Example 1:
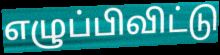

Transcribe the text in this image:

எழுப்பிவிட்டு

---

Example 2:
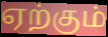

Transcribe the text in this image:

ஏற்கும்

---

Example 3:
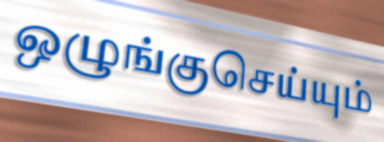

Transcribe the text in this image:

ஒழுங்குசெய்யும்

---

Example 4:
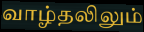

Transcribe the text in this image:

வாழ்தலிலும்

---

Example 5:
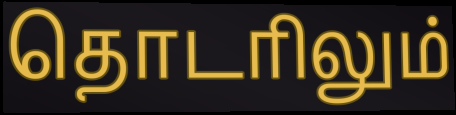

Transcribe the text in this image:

தொடரிலும்